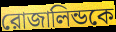
রোজালিন্ডকে